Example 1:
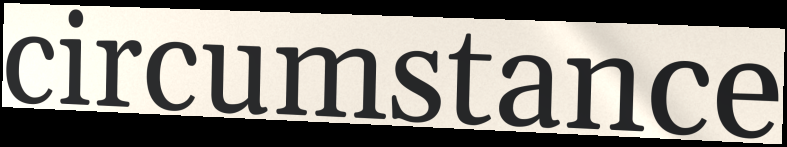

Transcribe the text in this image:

circumstance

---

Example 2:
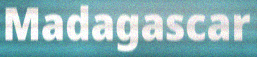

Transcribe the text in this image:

Madagascar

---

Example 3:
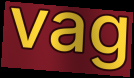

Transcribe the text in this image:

vag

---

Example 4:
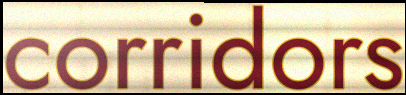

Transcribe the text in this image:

corridors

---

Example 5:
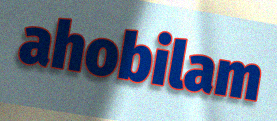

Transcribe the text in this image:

ahobilam